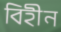
বিহীন